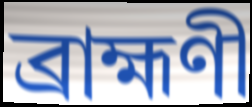
ব্রাহ্মণী